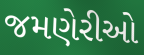
જમણેરીઓ